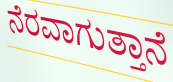
ನೆರವಾಗುತ್ತಾನೆ